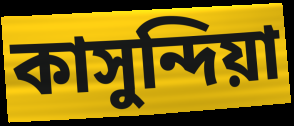
কাসুন্দিয়া